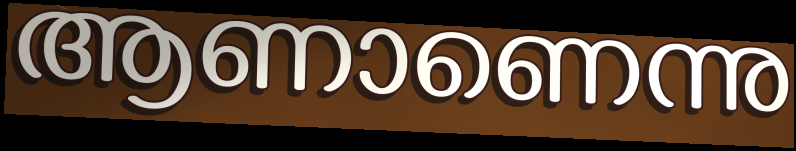
ആണാണെന്നു